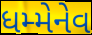
ધમ્મેનેવ